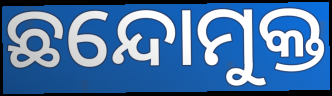
ଛନ୍ଦୋମୁକ୍ତ